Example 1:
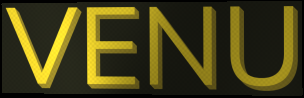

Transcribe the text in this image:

VENU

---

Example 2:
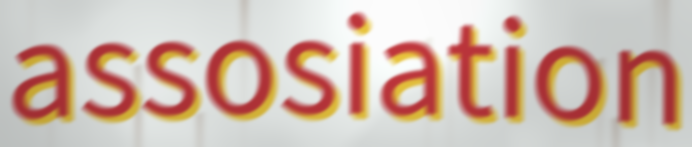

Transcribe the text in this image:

assosiation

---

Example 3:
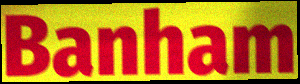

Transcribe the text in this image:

Banham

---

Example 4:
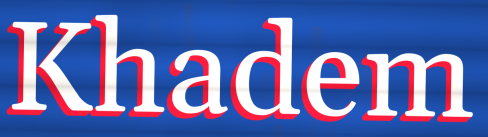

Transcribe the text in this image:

Khadem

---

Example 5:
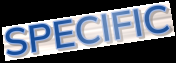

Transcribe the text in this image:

SPECIFIC